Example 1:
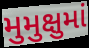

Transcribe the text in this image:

મુમુક્ષુમાં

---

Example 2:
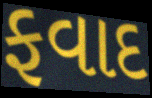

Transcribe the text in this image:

ફવાદ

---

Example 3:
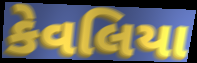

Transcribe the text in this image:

કેવલિયા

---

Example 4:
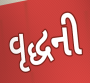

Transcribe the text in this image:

વૃદ્ધની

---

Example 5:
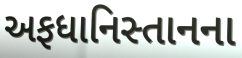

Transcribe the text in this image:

અફધાનિસ્તાનના